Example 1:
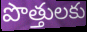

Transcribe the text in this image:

పొత్తులకు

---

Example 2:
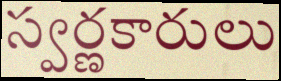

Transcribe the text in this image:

స్వర్ణకారులు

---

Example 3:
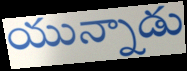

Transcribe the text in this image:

యున్నాడు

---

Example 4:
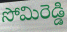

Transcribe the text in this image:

సోమిరెడ్డి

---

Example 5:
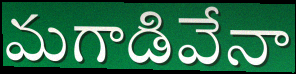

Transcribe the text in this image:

మగాడివేనా